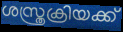
ശസ്ത്രക്രിയക്ക്